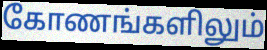
கோணங்களிலும்